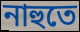
নাহুতে